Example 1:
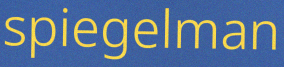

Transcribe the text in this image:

spiegelman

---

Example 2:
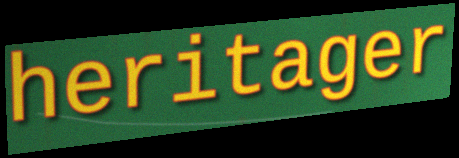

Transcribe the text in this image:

heritager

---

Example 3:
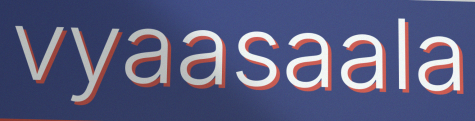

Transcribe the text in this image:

vyaasaala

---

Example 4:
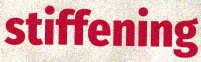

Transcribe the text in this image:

stiffening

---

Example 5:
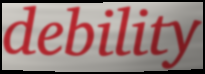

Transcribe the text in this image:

debility